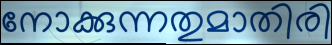
നോക്കുന്നതുമാതിരി